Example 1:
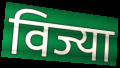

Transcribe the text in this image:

विज्या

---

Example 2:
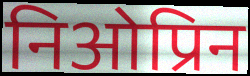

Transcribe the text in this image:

निओप्रिन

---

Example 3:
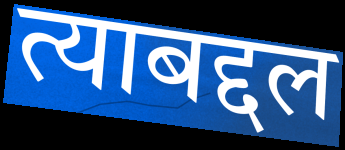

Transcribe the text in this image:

त्याबद्दल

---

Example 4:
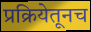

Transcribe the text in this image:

प्रक्रियेतूनच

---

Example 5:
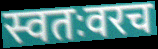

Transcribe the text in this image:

स्वतःवरच